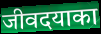
जीवदयाका